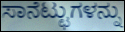
ಸಾನೆಟ್ಟುಗಳನ್ನು